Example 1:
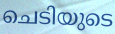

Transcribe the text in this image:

ചെടിയുടെ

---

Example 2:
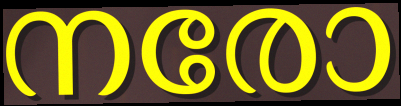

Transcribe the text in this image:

നരോ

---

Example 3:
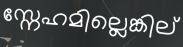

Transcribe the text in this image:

സ്നേഹമില്ലെങ്കില്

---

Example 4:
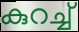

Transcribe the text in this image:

കുറച്ച്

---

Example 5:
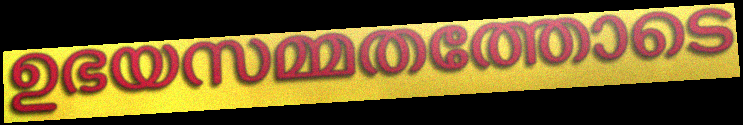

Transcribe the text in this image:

ഉഭയസമ്മതത്തോടെ